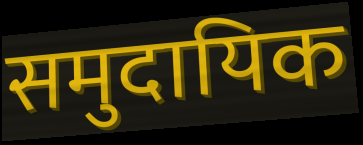
समुदायिक